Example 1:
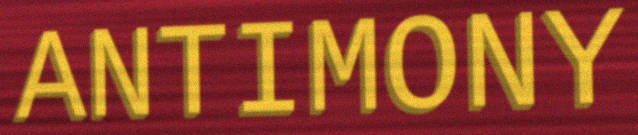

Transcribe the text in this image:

ANTIMONY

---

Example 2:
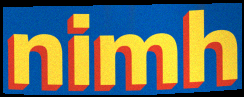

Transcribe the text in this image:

nimh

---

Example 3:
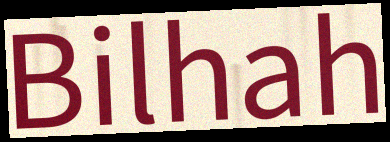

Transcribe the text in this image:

Bilhah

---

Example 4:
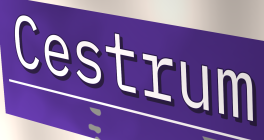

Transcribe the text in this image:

Cestrum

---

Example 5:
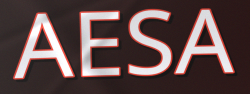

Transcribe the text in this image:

AESA